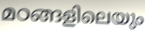
മഠങ്ങളിലെയും